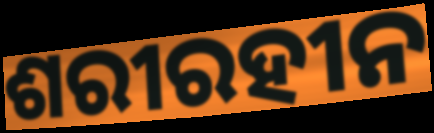
ଶରୀରହୀନ